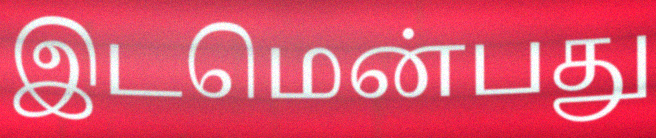
இடமென்பது